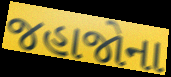
જહાજોના